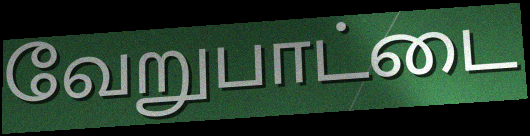
வேறுபாட்டை